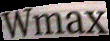
Wmax